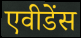
एवीडेंस